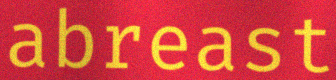
abreast